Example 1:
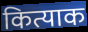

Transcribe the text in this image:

कित्याक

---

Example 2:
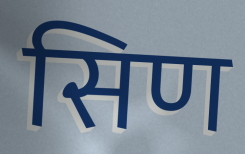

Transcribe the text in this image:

सिण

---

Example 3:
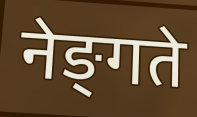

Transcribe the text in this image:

नेङ्गते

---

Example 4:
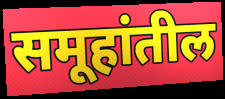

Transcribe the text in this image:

समूहांतील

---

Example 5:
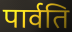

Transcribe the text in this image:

पार्वति